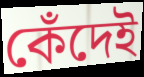
কেঁদেই